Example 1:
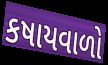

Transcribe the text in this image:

કષાયવાળો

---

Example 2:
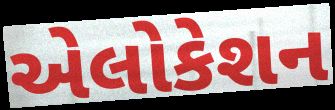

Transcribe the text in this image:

એલોકેશન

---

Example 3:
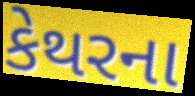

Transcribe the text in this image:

કેથરના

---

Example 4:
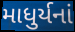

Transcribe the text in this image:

માધુર્યનાં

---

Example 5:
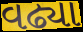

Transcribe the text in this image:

વઢ્યા